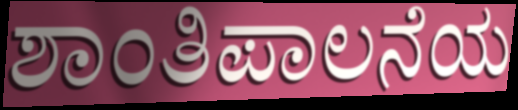
ಶಾಂತಿಪಾಲನೆಯ